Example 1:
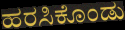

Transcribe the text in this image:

ಹರಸಿಕೊಂಡು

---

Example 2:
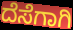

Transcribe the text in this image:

ದೆಸೆಗಾಗಿ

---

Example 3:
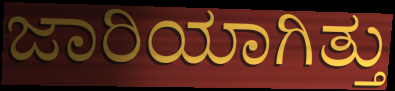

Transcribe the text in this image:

ಜಾರಿಯಾಗಿತ್ತು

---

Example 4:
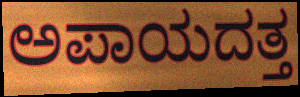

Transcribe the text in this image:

ಅಪಾಯದತ್ತ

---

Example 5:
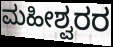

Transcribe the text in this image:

ಮಹೀಶ್ವರರ